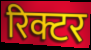
रिक्टर